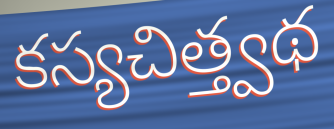
కస్యచిత్త్వథ